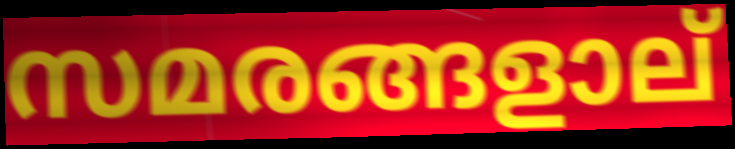
സമരങ്ങളാല്